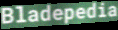
Bladepedia